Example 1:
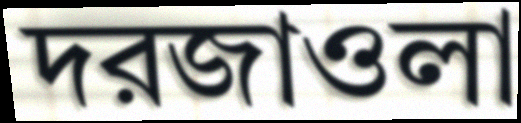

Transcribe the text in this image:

দরজাওলা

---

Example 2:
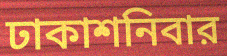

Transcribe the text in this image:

ঢাকাশনিবার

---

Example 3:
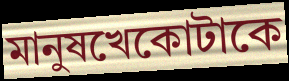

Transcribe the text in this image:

মানুষখেকোটাকে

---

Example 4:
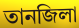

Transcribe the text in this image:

তানজিলা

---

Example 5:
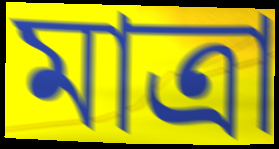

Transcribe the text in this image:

মাত্রা